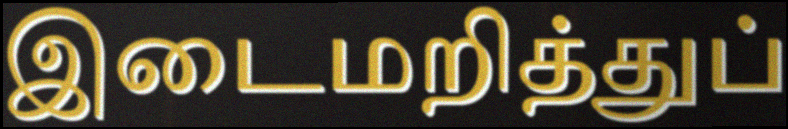
இடைமறித்துப்